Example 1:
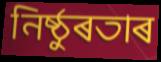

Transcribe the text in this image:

নিষ্ঠুৰতাৰ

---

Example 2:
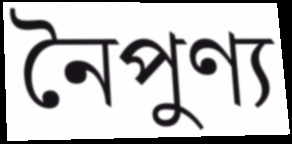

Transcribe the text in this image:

নৈপুণ্য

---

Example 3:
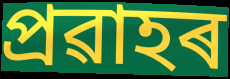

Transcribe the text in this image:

প্ৰৱাহৰ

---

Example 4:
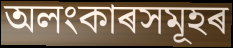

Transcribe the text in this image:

অলংকাৰসমূহৰ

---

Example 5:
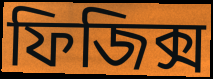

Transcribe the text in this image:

ফিজিক্স